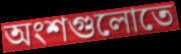
অংশগুলোতে